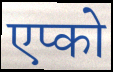
एप्को